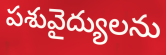
పశువైద్యులను